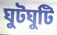
ঘুটঘুটি